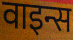
वाइन्स